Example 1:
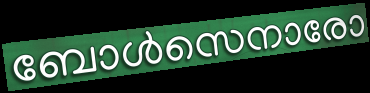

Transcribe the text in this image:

ബോൾസെനാരോ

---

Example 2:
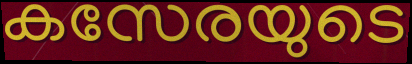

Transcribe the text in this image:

കസേരയുടെ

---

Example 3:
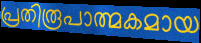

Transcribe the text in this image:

പ്രതിരൂപാത്മകമായ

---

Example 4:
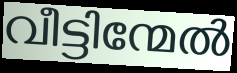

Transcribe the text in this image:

വീട്ടിന്മേൽ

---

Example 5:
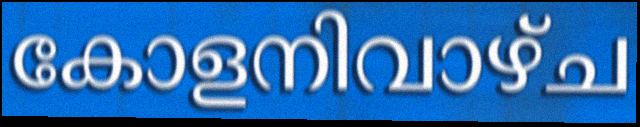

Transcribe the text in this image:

കോളനിവാഴ്ച